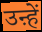
उऩ्हें